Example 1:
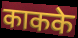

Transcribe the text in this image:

काकके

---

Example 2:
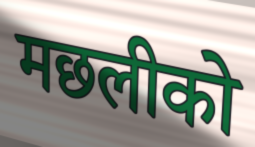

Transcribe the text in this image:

मछलीको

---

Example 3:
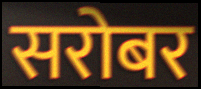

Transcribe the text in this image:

सरोबर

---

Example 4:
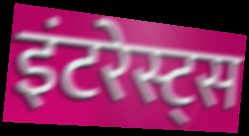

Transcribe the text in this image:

इंटरेस्ट्स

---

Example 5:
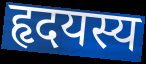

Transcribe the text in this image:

हृदयस्य